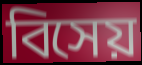
বিসেয়